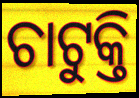
ଚାଟୁକ୍ତି